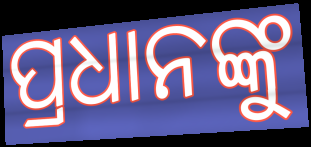
ପ୍ରଧାନଙ୍କୁ